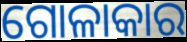
ଗୋଳାକାର